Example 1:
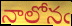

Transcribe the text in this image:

నాలోనఁ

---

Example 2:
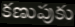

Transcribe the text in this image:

కణుపుకు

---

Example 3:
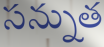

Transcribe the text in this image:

సన్నుత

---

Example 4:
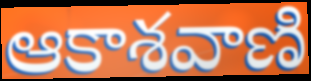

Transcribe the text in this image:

ఆకాశవాణి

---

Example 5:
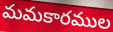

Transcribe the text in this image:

మమకారముల